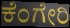
ಕೆಂಗೇರಿ